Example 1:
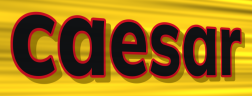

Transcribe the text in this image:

caesar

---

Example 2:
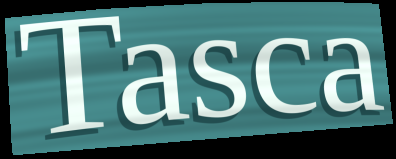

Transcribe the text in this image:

Tasca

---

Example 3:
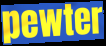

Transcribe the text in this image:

pewter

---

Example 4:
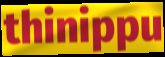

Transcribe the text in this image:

thinippu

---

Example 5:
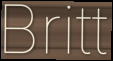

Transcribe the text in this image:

Britt